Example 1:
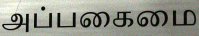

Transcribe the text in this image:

அப்பகைமை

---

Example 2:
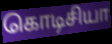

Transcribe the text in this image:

கொடிசியா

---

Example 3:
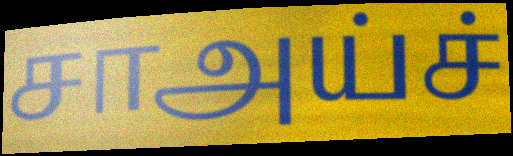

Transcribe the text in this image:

சாஅய்ச்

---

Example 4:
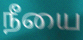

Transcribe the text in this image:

நீயை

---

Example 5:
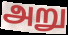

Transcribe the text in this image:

அறு